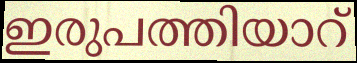
ഇരുപത്തിയാറ്